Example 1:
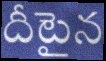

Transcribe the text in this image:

దీటైన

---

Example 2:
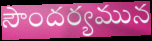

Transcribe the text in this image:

సౌందర్యమున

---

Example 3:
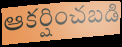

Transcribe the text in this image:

ఆకర్షించబడి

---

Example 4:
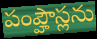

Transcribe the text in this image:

పంప్హౌస్లను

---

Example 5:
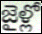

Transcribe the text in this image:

జైళ్లో